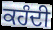
ਕਹੰਦੀ